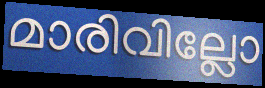
മാരിവില്ലോ